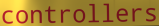
controllers